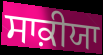
ਸਾਕ਼ੀਯਾ